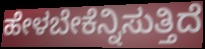
ಹೇಳಬೇಕೆನ್ನಿಸುತ್ತಿದೆ